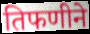
तिफणीने